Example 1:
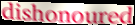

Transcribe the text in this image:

dishonoured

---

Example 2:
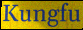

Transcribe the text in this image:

Kungfu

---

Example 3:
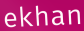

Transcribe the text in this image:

ekhan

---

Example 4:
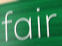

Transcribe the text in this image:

fair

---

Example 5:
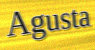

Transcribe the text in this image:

Agusta